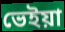
ভেইয়া